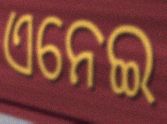
ଏନେଇ